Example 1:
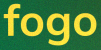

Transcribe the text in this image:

fogo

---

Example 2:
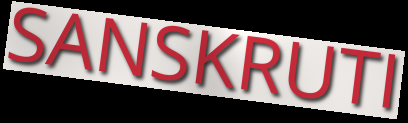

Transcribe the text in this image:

SANSKRUTI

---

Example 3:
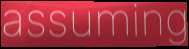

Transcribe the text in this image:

assuming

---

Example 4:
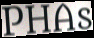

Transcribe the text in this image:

PHAs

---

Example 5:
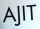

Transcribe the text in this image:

AJIT